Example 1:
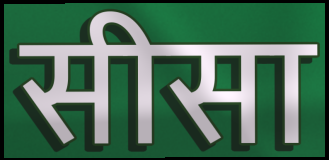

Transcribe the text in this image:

सीसा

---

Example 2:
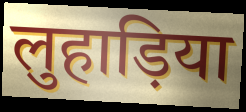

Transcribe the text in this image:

लुहाड़िया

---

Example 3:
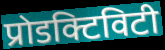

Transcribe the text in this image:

प्रोडक्टिविटी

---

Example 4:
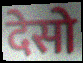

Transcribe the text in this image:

देसो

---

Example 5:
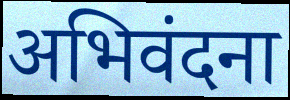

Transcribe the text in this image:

अभिवंदना